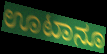
ಊಟಾನೂ